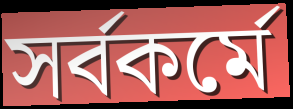
সর্বকর্মে